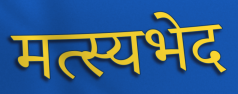
मत्स्यभेद